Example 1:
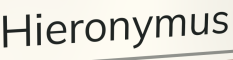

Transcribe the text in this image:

Hieronymus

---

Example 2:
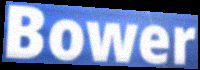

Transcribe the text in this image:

Bower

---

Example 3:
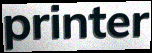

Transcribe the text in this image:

printer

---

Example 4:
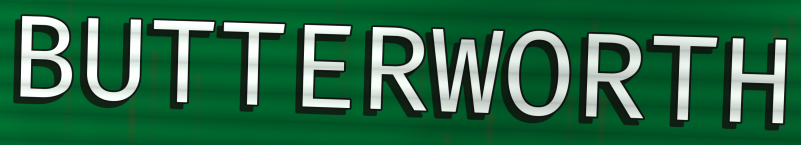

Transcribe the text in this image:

BUTTERWORTH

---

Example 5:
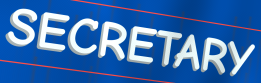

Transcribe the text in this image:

SECRETARY